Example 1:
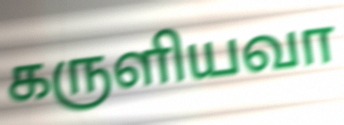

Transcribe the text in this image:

கருளியவா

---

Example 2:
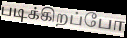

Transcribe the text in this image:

படிக்கிறப்போ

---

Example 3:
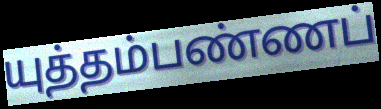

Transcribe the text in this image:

யுத்தம்பண்ணப்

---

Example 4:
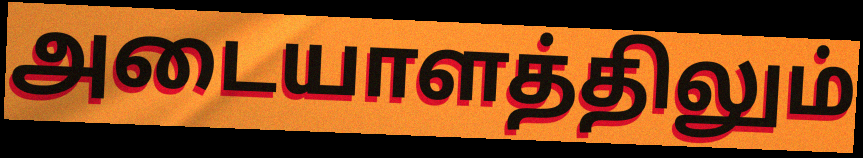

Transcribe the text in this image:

அடையாளத்திலும்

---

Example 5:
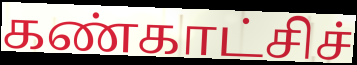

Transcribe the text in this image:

கண்காட்சிச்